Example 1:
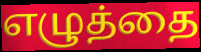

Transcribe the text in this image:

எழுத்தை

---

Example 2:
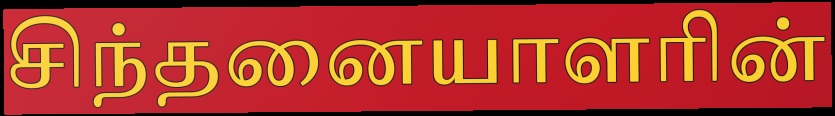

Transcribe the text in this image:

சிந்தனையாளரின்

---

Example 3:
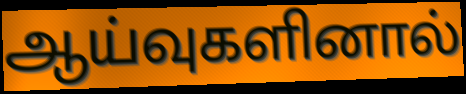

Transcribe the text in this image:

ஆய்வுகளினால்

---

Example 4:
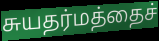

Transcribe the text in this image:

சுயதர்மத்தைச்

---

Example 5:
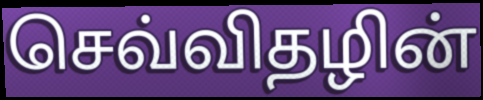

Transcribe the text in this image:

செவ்விதழின்